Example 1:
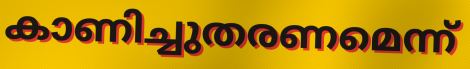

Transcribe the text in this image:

കാണിച്ചുതരണമെന്ന്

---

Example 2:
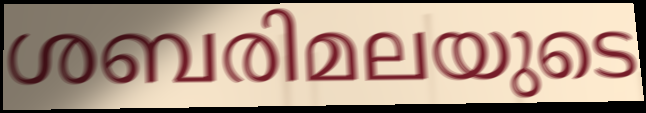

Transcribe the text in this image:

ശബരിമലയുടെ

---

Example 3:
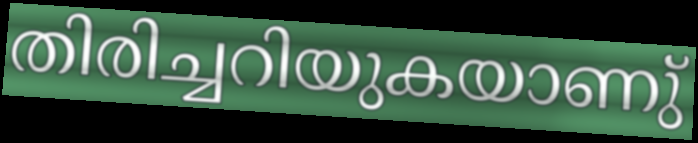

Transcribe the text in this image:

തിരിച്ചറിയുകയാണു്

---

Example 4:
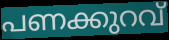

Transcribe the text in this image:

പണക്കുറവ്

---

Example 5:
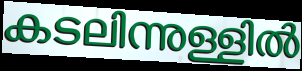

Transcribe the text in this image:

കടലിന്നുള്ളിൽ